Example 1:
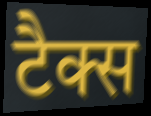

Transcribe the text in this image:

टैक्‍स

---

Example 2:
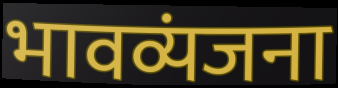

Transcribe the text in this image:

भावव्यंजना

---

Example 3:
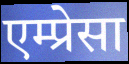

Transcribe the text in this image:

एम्प्रेसा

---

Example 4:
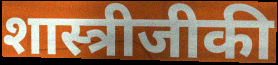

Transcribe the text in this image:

शास्त्रीजीकी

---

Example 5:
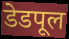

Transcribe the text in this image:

डेडपूल